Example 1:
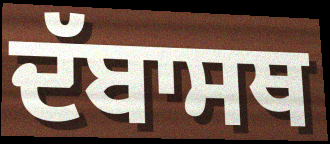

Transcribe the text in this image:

ਦੱਬਾਸਥ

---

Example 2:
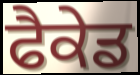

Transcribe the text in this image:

ਫੈਕੇਡ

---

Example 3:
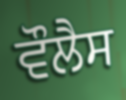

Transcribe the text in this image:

ਵੌਲੈਸ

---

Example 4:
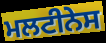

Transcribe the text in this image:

ਮਲਟੀਨੇਸ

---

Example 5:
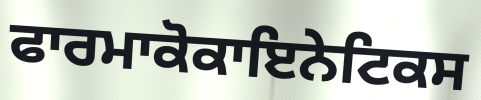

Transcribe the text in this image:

ਫਾਰਮਾਕੋਕਾਇਨੇਟਿਕਸ